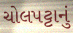
ચોલપટ્ટાનું